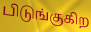
பிடுங்குகிற